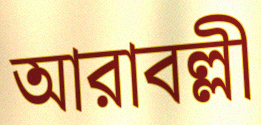
আরাবল্লী